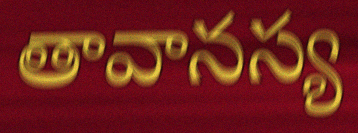
తావానస్య